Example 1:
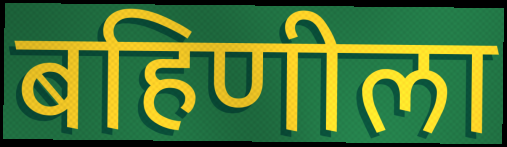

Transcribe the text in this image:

बहिणीला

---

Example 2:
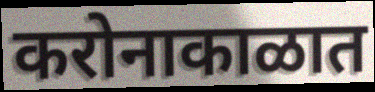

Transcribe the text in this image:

करोनाकाळात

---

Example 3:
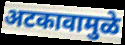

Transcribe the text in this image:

अटकावामुळे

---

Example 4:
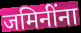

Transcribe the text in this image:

जमिनींना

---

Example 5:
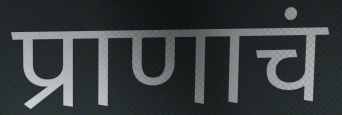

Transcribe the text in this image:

प्राणाचं